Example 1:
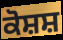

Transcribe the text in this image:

ਕੋਸ਼ਸ਼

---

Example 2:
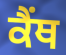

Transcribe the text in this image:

ਕੈਂਥ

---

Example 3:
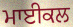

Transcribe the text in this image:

ਮਾਈਕਲ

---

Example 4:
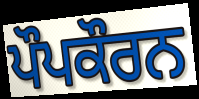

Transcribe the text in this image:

ਪੌਪਕੌਰਨ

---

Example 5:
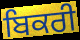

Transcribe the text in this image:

ਬਿਕਰੀ